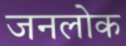
जनलोक